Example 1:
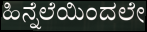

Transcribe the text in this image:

ಹಿನ್ನೆಲೆಯಿಂದಲೇ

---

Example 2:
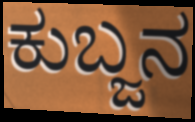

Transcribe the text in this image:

ಕುಬ್ಜನ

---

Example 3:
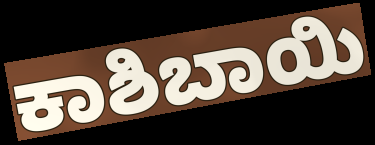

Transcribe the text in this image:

ಕಾಶಿಬಾಯಿ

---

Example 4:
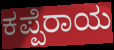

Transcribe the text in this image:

ಕಪ್ಪೆರಾಯ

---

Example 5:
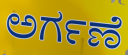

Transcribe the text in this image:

ಅರ್ಗಣೆ